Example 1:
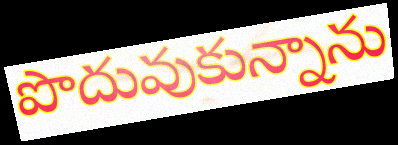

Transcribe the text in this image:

పొదువుకున్నాను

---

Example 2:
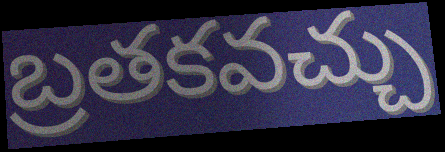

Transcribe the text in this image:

బ్రతకవచ్చు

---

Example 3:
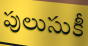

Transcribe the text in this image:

పులుసుకీ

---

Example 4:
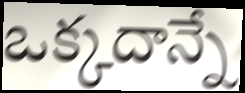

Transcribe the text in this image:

ఒక్కదాన్నే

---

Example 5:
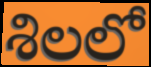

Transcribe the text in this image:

శిలలో